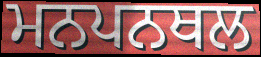
ਮਨਪਨਥਲ